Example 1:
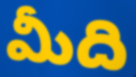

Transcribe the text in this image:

మీది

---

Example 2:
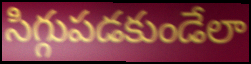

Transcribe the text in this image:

సిగ్గుపడకుండేలా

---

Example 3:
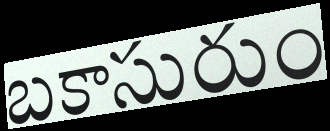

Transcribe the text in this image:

బకాసురుం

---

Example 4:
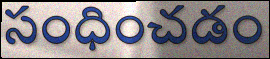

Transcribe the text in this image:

సంధించడం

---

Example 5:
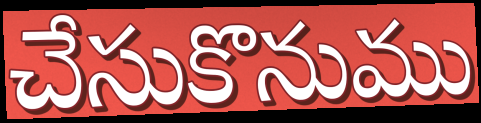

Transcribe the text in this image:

చేసుకొనుము